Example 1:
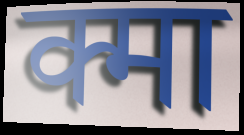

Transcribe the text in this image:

क्मा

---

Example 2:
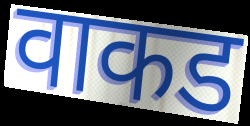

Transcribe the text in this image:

वाकड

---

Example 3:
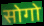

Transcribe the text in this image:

सोगो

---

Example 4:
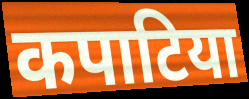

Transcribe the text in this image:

कपाटिया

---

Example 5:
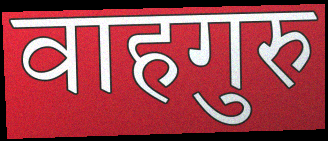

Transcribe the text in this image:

वाहगुरु